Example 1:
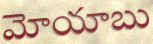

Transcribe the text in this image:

మోయాబు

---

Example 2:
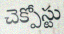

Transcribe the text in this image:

చెక్పోస్టు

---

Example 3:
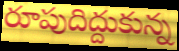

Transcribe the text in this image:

రూపుదిద్దుకున్న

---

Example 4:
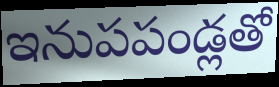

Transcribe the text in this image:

ఇనుపపండ్లతో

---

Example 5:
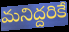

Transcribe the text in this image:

మనిద్దరికే